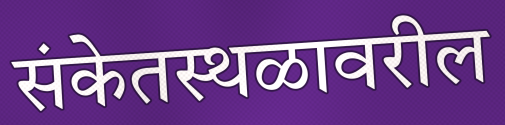
संकेतस्थळावरील